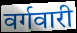
वर्गवारी